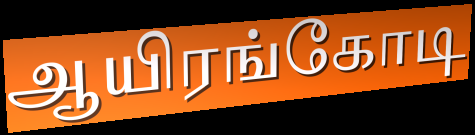
ஆயிரங்கோடி